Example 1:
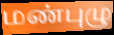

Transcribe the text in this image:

மண்புழு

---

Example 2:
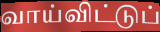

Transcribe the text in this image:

வாய்விட்டுப்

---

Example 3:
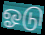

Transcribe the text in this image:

ஓடு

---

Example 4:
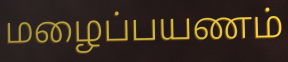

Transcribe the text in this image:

மழைப்பயணம்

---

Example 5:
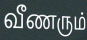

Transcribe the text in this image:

வீணரும்